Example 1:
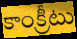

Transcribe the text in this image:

కాంక్రీటు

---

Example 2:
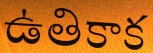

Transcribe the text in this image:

ఉతికాక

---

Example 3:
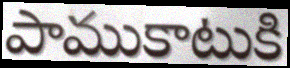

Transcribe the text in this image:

పాముకాటుకి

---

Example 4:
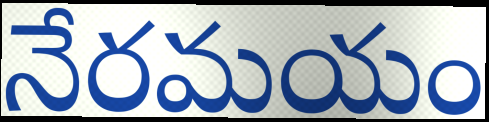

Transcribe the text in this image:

నేరమయం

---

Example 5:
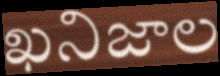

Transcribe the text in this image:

ఖనిజాల